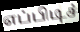
எப்பிடிச்